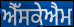
ਐੱਸਕੇਐਮ